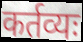
कर्तव्यः